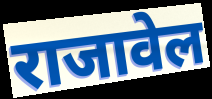
राजावेल